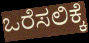
ಒರೆಸಲಿಕ್ಕೆ